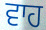
ਵਾਹ